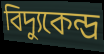
বিদ্যুকেন্দ্র